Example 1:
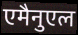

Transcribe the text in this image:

एमैनुएल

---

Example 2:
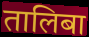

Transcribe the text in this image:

तालिबा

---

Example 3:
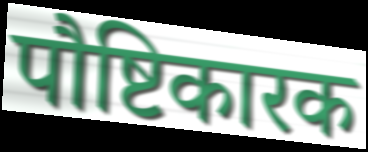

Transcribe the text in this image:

पौष्टिकारक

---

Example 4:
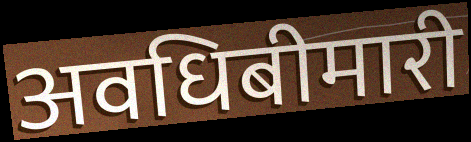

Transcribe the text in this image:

अवधिबीमारी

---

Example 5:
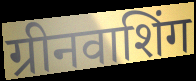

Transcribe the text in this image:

ग्रीनवाशिंग